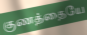
குணத்தையே